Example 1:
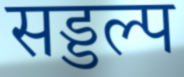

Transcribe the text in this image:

सड्डल्प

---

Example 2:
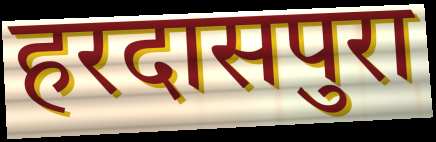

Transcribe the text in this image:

हरदासपुरा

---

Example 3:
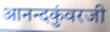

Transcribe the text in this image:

आनन्दकुंवरजी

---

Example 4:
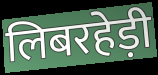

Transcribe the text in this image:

लिबरहेड़ी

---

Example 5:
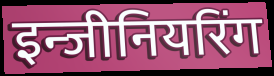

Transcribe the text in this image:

इन्जीनियरिंग